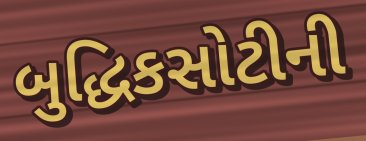
બુદ્ધિકસોટીની